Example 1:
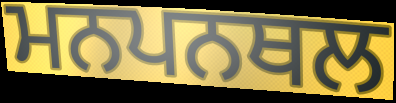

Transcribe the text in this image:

ਮਨਪਨਥਲ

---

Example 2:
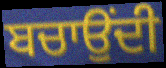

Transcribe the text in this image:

ਬਚਾਉਂਦੀ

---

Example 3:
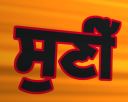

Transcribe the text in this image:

ਸੁਣੀਁ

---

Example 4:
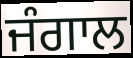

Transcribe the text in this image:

ਜੰਗਾਲ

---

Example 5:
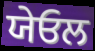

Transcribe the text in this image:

ਯੇਓਲ